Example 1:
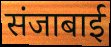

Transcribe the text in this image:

संजाबाई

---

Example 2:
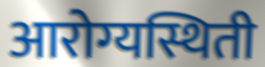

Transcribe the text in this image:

आरोग्यस्थिती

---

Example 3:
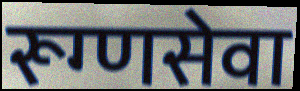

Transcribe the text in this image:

रूग्णसेवा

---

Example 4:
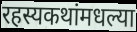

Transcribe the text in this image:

रहस्यकथांमधल्या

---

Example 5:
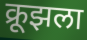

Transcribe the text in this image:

क्रूझला